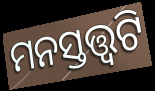
ମନସ୍ତତ୍ତ୍ୱଟି